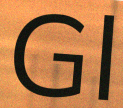
Gl